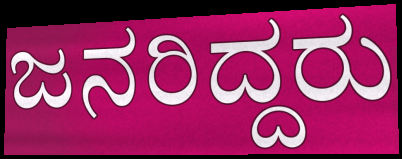
ಜನರಿದ್ದರು